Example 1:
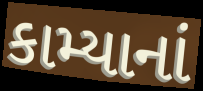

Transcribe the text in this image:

કામ્યાનાં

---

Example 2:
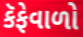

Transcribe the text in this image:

કૅફેવાળો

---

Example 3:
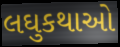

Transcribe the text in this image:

લઘુકથાઓ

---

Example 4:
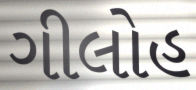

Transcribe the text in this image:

ગીલોહ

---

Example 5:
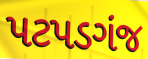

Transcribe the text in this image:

પટપડગંજ